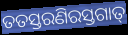
ତତସ୍ତରଣିରସ୍ତଗାତ୍